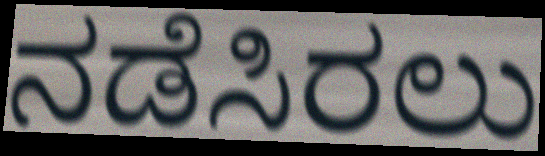
ನಡೆಸಿರಲು